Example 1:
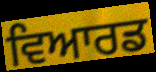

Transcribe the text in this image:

ਵਿਆਰਡ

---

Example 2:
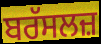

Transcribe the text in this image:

ਬਰੱਸਲਜ਼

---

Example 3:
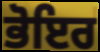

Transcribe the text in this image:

ਭੋਇਰ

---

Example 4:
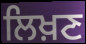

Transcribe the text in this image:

ਲਿਖ਼ਣ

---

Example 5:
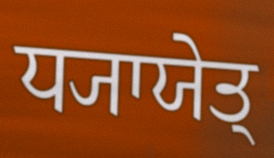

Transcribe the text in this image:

ਧ੍ਯਾਯੇਤ੍